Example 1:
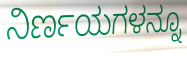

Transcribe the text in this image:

ನಿರ್ಣಯಗಳನ್ನೂ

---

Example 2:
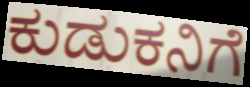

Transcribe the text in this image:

ಕುಡುಕನಿಗೆ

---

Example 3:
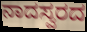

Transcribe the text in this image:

ನಾದಸ್ವರದ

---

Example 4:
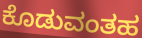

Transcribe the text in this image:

ಕೊಡುವಂತಹ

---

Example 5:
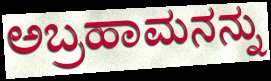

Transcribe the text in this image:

ಅಬ್ರಹಾಮನನ್ನು